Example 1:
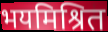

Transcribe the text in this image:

भयमिश्रित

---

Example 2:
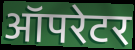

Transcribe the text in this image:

ऑपरेटर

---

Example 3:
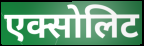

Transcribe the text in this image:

एक्सोलिट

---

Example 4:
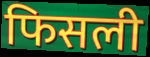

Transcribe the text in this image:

फिसली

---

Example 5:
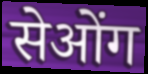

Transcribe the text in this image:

सेओंग